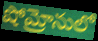
షోమ్రోనులో